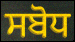
ਸਬੋਧ